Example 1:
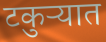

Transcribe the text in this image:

टकुऱ्यात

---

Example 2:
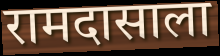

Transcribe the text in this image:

रामदासाला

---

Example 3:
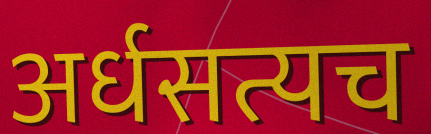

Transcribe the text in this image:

अर्धसत्यच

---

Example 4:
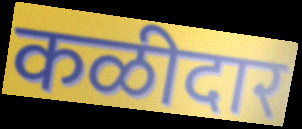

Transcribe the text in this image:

कळीदार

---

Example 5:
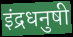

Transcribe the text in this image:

इंद्रधनुषी